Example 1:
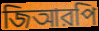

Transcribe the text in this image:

জিআরপি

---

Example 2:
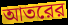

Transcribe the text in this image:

আতরের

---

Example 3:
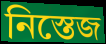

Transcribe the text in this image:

নিস্তেজ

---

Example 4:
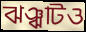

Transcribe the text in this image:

ঝঞ্ঝাটও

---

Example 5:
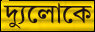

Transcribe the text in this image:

দ্যুলোকে